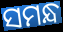
ସମନ୍ଧ